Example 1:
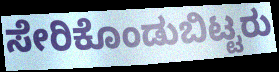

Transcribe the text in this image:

ಸೇರಿಕೊಂಡುಬಿಟ್ಟರು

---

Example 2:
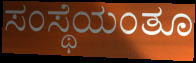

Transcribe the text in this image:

ಸಂಸ್ಥೆಯಂತೂ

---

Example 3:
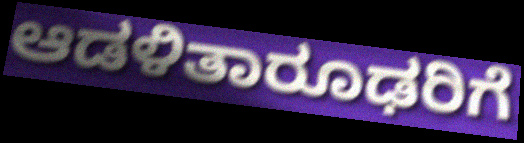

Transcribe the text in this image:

ಆಡಳಿತಾರೂಢರಿಗೆ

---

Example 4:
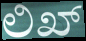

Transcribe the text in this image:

ಲಿಖ್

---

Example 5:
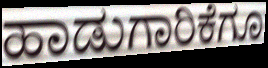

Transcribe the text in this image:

ಹಾಡುಗಾರಿಕೆಗೂ